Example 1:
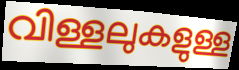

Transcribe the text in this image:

വിള്ളലുകളുള്ള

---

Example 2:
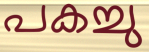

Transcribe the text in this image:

പകച്ചു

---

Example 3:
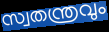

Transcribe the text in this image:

സ്വതന്ത്രവും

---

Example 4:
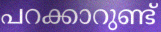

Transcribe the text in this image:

പറക്കാറുണ്ട്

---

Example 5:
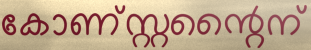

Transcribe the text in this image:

കോണ്സ്റ്റന്റൈന്